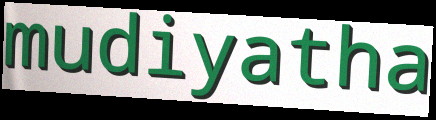
mudiyatha